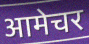
आमेचर